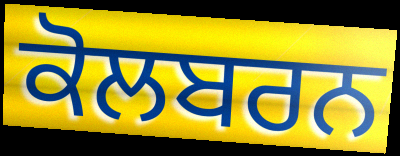
ਕੋਲਬਰਨ